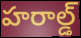
హరాల్డ్